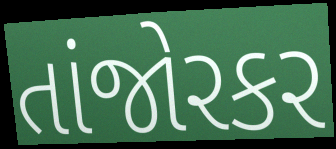
તાંજોરકર